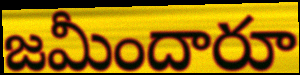
జమీందారూ